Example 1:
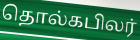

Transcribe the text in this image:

தொல்கபிலர்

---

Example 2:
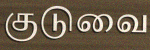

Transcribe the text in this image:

குடுவை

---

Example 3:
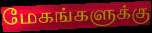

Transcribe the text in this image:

மேகங்களுக்கு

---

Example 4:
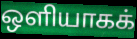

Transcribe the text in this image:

ஒளியாகக்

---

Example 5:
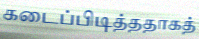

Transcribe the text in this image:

கடைப்பிடித்ததாகத்